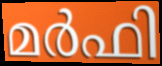
മർഫി